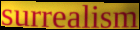
surrealism